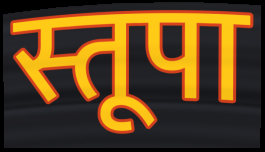
स्तूपा